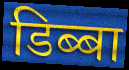
डिब्बा